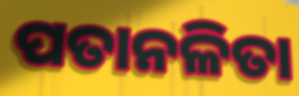
ପତାନଳିତା